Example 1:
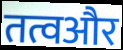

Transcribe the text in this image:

तत्वऔर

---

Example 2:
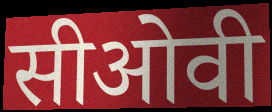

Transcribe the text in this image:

सीओवी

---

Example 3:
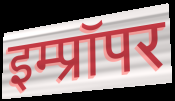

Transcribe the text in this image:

इम्प्रॉपर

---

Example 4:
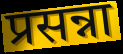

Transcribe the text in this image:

प्रसन्ना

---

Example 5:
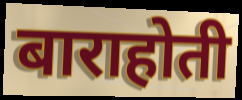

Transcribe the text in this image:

बाराहोती